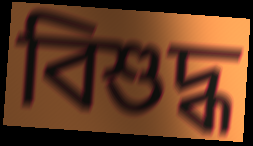
বিশুদ্ধ